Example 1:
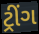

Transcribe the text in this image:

ટ્રીંગ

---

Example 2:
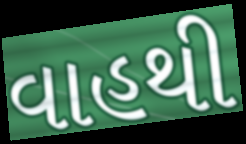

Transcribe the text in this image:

વાહથી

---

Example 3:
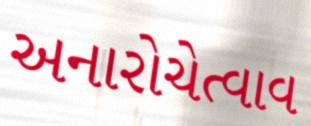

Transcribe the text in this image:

અનારોચેત્વાવ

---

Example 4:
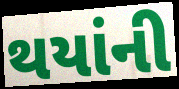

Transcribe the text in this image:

થયાંની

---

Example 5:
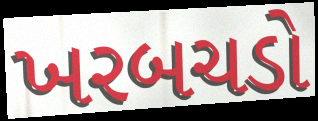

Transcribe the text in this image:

ખરબચડો